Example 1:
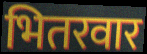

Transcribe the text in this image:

भितरवार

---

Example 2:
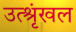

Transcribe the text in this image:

उत्श्रृंखल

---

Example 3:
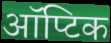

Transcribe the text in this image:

ऑप्टिक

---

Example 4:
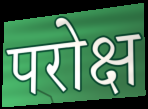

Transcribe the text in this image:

परोक्ष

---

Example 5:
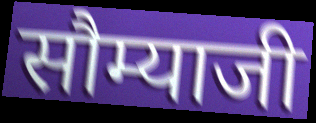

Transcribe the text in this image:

सौम्याजी